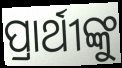
ପ୍ରାର୍ଥୀଙ୍କୁ